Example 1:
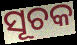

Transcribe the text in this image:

ସୂଚକ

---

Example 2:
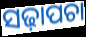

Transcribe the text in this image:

ସଢ଼ାପଚା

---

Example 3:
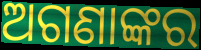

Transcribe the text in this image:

ଅଗଣାଙ୍କର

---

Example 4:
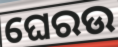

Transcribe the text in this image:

ଘେରଉ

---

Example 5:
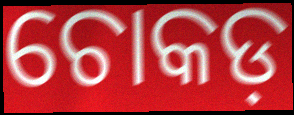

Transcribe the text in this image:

ଚୋକଡ଼